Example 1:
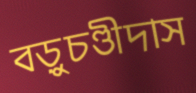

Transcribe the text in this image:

বড়ুচণ্ডীদাস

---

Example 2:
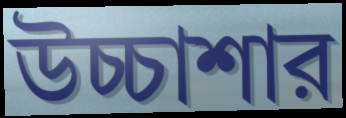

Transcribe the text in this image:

উচ্চাশার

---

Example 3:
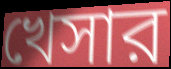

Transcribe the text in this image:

খেসার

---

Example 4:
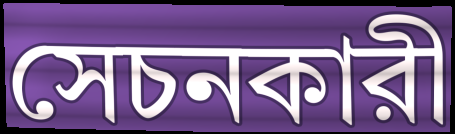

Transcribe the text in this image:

সেচনকারী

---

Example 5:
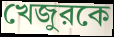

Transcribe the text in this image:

খেজুরকে